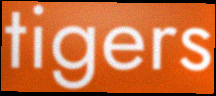
tigers